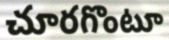
చూరగొంటూ